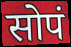
सोपं